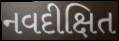
નવદીક્ષિત